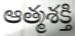
ఆత్మశక్తి